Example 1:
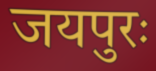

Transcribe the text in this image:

जयपुरः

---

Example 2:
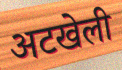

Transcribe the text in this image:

अटखेली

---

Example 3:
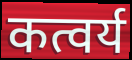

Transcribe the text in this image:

कत्वर्य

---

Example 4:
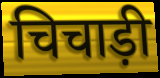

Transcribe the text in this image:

चिचाड़ी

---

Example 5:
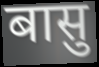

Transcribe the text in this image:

बासु